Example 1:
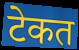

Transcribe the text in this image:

टेकत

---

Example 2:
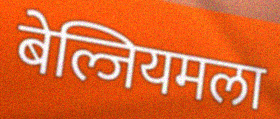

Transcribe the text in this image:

बेल्जियमला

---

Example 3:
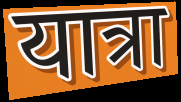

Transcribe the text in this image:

यात्रा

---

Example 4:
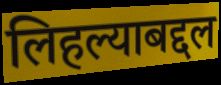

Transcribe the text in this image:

लिहल्याबद्दल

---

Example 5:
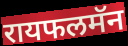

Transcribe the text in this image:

रायफलमॅन